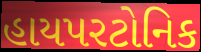
હાયપરટોનિક